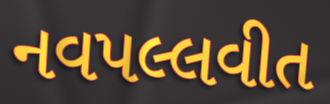
નવપલ્લવીત